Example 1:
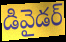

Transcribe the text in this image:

డివైడర్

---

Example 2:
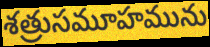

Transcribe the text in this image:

శత్రుసమూహమును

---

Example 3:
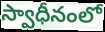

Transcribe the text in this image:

స్వాధీనంలో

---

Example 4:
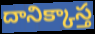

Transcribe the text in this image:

దానిక్కాస్త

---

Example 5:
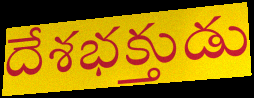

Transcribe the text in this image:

దేశభక్తుడు